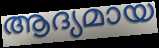
ആദ്യമായ